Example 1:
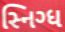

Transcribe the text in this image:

સ્નિગ્ધ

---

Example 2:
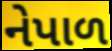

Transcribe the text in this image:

નેપાળ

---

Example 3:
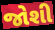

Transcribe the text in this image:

જોશી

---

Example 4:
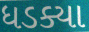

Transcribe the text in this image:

ધડક્યા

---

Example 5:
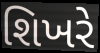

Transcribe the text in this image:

શિખરે